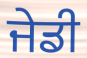
ਜੇਡੀ